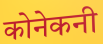
कोनेकनी